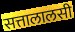
सत्तालालसी